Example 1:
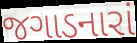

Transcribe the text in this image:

જગાડનારાં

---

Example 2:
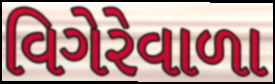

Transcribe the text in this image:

વિગેરેવાળા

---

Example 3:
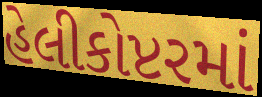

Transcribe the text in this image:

હેલીકોપ્ટરમાં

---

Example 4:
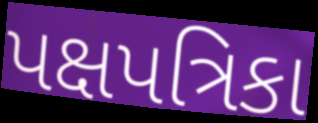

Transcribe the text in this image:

પક્ષપત્રિકા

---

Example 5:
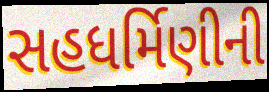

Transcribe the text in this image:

સહધર્મિણીની